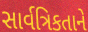
સાર્વત્રિકતાને